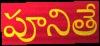
పూనితే